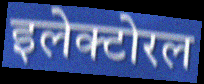
इलेक्टोरल